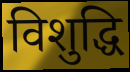
विशुद्धि